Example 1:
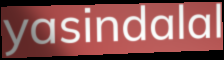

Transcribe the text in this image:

yasindalal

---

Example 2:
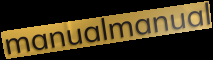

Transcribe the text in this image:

manualmanual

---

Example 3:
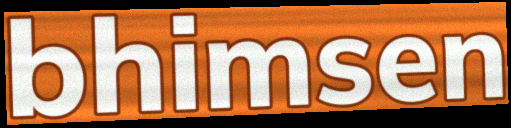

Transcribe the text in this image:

bhimsen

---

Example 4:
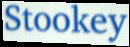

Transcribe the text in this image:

Stookey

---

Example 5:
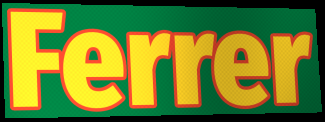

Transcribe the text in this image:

Ferrer